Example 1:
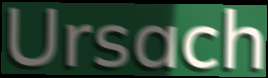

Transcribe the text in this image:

Ursach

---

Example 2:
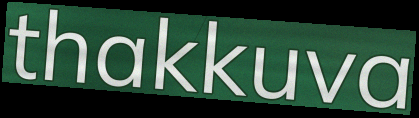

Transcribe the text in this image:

thakkuva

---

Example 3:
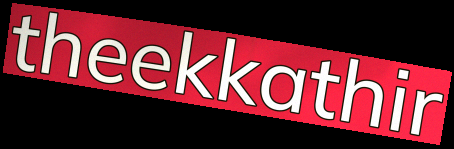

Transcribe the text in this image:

theekkathir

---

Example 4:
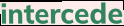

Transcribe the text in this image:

intercede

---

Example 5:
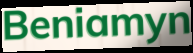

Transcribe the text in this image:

Beniamyn